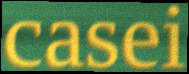
casei